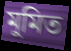
মুমিত